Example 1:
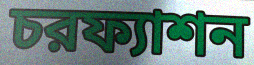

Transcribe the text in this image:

চরফ্যাশন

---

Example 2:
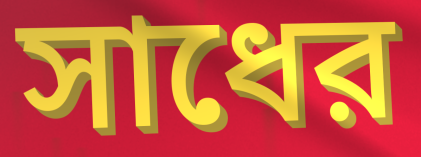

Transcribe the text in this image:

সাধের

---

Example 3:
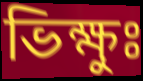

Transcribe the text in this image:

ভিক্ষুঃ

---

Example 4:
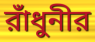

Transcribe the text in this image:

রাঁধুনীর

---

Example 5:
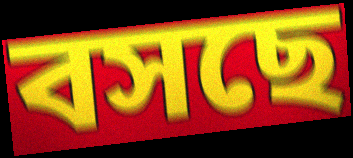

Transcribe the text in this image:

বসছে